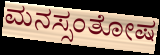
ಮನಸ್ಸಂತೋಷ